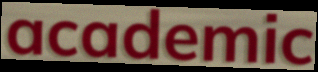
academic